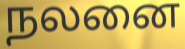
நலனை